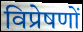
विप्रेषणों